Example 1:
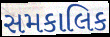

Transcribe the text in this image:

સમકાલિક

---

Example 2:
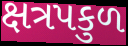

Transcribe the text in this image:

ક્ષત્રપકુળ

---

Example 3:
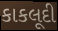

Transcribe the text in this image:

કાકલૂદી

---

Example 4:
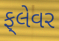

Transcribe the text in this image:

ફ્‌લેવર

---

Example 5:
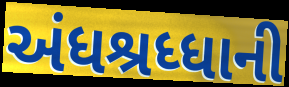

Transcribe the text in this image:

અંધશ્રધ્ધાની